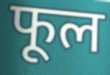
फूल